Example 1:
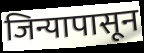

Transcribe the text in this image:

जिन्यापासून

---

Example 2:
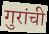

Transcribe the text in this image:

गुरांची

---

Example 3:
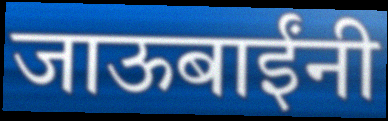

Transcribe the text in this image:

जाऊबाईंनी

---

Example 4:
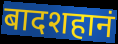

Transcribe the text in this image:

बादशहानं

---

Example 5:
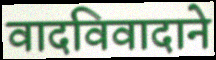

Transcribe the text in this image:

वादविवादाने